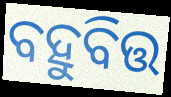
ବହୁବିତ୍ତ